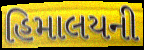
હિમાલયની